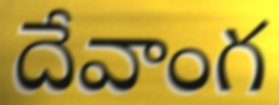
దేవాంగ